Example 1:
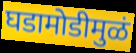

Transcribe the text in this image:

घडामोडीमुळं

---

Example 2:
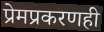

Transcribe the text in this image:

प्रेमप्रकरणही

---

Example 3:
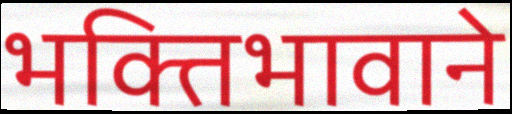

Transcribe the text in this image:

भक्तिभावाने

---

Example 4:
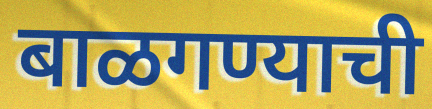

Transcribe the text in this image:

बाळगण्याची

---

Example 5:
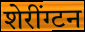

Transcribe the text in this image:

शेरींग्टन